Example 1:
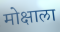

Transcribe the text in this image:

मोक्षाला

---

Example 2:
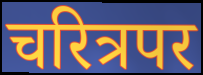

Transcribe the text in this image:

चरित्रपर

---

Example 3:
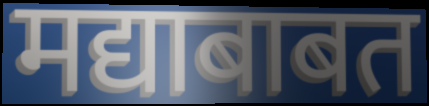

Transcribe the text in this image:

मद्याबाबत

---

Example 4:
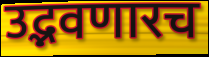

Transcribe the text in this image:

उद्भवणारच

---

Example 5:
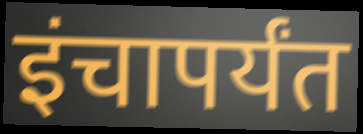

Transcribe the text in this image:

इंचापर्यंत